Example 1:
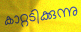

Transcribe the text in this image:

കാറ്റടിക്കുന്നു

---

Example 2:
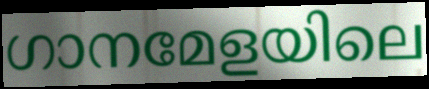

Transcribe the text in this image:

ഗാനമേളയിലെ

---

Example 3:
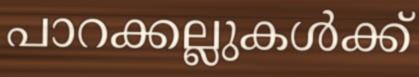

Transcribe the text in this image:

പാറക്കല്ലുകൾക്ക്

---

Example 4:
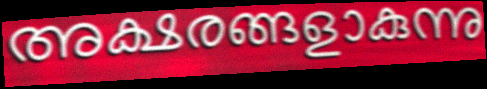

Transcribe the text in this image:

അക്ഷരങ്ങളാകുന്നു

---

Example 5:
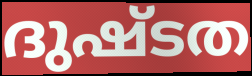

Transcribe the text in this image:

ദുഷ്ടത